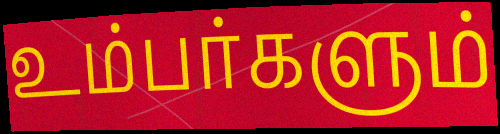
உம்பர்களும்